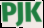
PJK